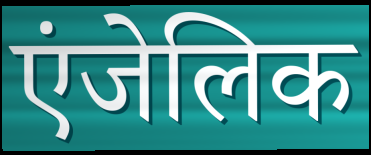
एंजेलिक